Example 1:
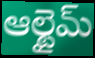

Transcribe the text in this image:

ఆల్టైమ్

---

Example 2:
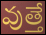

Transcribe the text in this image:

వుత్తే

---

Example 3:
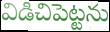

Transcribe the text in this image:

విడిచిపెట్టను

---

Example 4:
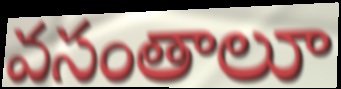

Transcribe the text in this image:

వసంతాలూ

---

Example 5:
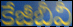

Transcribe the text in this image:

కేజీబీవీ